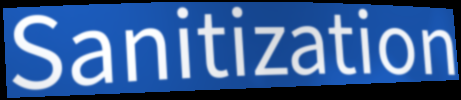
Sanitization